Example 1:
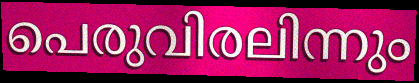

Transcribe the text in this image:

പെരുവിരലിന്നും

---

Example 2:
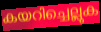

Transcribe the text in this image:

കയറിച്ചെല്ലുക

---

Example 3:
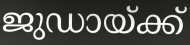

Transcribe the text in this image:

ജുഡായ്ക്ക്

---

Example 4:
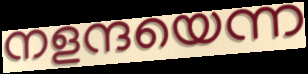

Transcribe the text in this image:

നളന്ദയെന്ന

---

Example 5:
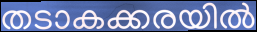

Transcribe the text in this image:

തടാകക്കരയിൽ